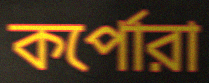
কর্পোরা